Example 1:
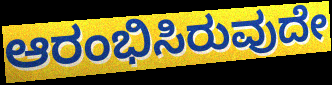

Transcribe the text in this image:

ಆರಂಭಿಸಿರುವುದೇ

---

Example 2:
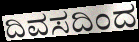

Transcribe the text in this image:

ದಿವಸದಿಂದ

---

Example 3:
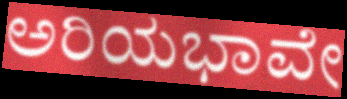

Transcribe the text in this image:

ಅರಿಯಭಾವೇ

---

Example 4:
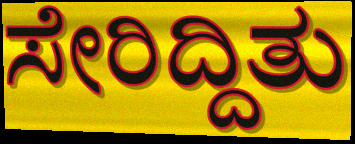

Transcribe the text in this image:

ಸೇರಿದ್ದಿತು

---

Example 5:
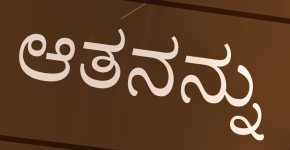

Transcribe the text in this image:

ಆತನನ್ನು